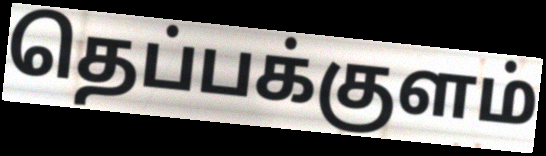
தெப்பக்குளம்